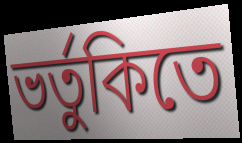
ভর্তুকিতে